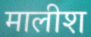
मालीश